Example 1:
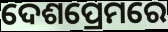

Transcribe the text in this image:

ଦେଶପ୍ରେମରେ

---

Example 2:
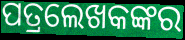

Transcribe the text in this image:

ପତ୍ରଲେଖକଙ୍କର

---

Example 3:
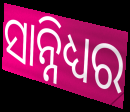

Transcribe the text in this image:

ସାନ୍ନିଧ୍ୟର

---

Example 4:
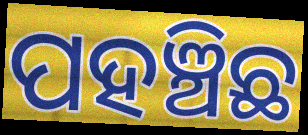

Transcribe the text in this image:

ପହଞ୍ଚିଛ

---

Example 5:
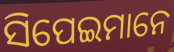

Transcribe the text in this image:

ସିପେଇମାନେ